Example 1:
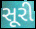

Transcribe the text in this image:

સૂરી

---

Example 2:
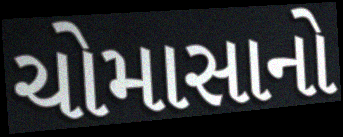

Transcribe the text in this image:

ચોમાસાનો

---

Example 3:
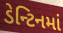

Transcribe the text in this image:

ડેન્ટિનમાં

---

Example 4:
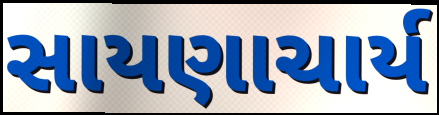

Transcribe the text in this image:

સાયણાચાર્ય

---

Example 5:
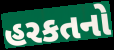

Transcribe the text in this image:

હરકતનો